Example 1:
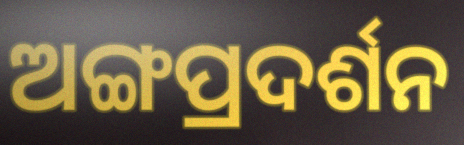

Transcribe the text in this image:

ଅଙ୍ଗପ୍ରଦର୍ଶନ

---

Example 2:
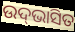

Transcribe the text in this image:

ଉଦ୍‌ଭାସିତ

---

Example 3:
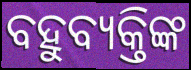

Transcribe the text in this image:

ବହୁବ୍ୟକ୍ତିଙ୍କ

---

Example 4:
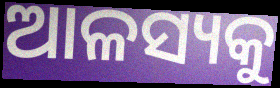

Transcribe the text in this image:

ଆଳସ୍ୟକୁ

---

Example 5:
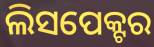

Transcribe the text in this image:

ଲିସପେକ୍ଟର